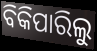
ବିକିପାରିଲୁ